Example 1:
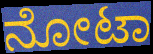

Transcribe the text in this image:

ನೋಟಾ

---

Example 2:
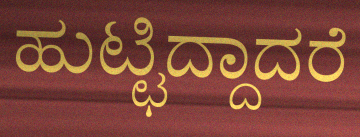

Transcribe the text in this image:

ಹುಟ್ಟಿದ್ದಾದರೆ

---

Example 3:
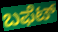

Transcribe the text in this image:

ಬಫೆಟ್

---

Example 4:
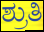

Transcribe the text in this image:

ಶ್ರುತಿ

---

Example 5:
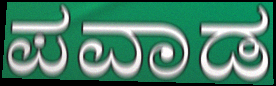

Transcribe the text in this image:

ಪವಾಡ